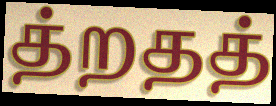
த்றதத்